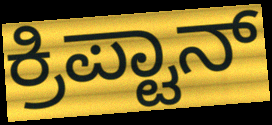
ಕ್ರಿಪ್ಟಾನ್